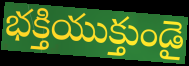
భక్తియుక్తుండై